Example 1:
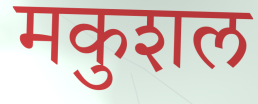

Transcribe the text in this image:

मकुशल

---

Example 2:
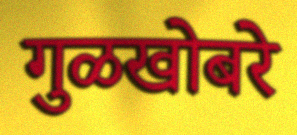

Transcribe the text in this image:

गुळखोबरे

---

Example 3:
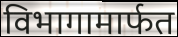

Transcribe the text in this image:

विभागामार्फत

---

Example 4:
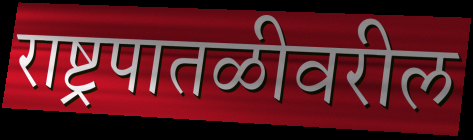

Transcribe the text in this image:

राष्ट्रपातळीवरील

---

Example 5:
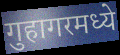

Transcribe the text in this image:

गुहागरमध्ये